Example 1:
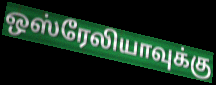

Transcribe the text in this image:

ஒஸ்ரேலியாவுக்கு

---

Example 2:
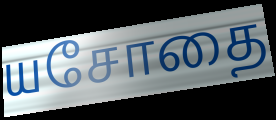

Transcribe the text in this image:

யசோதை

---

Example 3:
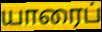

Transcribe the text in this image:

யாரைப்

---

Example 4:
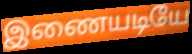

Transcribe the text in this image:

இணையடியே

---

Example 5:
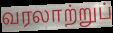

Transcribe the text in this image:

வரலாற்றுப்